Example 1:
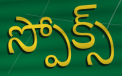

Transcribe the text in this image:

స్పోక్స్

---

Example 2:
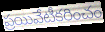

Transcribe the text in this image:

ప్రయివేటీకరించం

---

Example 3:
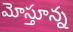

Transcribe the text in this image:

మోస్తూన్న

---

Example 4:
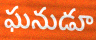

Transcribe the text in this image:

ఘనుడూ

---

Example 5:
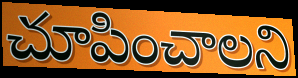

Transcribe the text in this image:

చూపించాలని